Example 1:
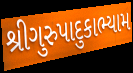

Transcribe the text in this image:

શ્રીગુરુપાદુકાભ્યામ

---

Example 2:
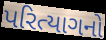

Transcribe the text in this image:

પરિત્યાગનો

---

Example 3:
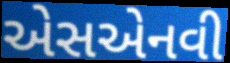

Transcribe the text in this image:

એસએનવી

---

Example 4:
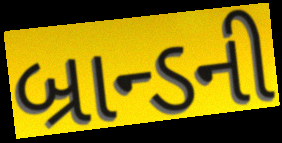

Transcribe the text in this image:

બ્રાન્ડની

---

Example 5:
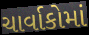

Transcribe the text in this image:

ચાર્વાકોમાં